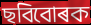
ছবিবোৰক